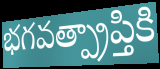
భగవత్ప్రాప్తికి